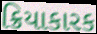
ક્રિયાકારક